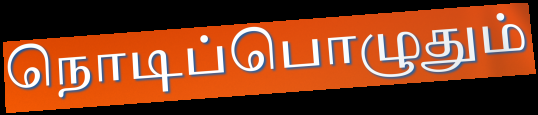
நொடிப்பொழுதும்